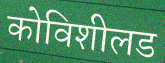
कोविशीलड